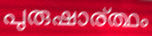
പുരുഷാര്ത്ഥം